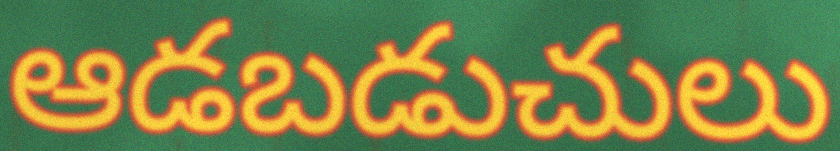
ఆడబడుచులు